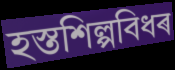
হস্তশিল্পবিধৰ